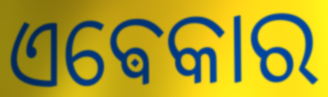
ଏଵେକାର